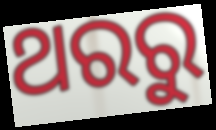
ଥରରୁ